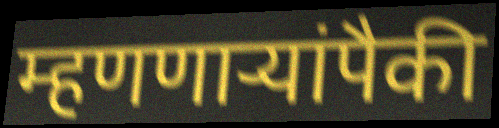
म्हणणाऱ्यांपैकी